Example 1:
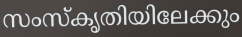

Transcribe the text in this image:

സംസ്കൃതിയിലേക്കും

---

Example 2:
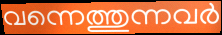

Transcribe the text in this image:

വന്നെത്തുന്നവർ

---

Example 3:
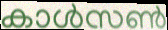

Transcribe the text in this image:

കാൾസൺ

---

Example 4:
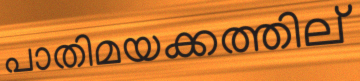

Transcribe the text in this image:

പാതിമയക്കത്തില്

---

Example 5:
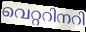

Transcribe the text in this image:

വെറ്ററിനറി